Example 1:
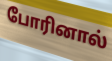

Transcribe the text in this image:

போரினால்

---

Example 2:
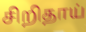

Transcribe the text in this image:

சிறிதாய்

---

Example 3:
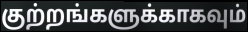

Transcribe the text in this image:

குற்றங்களுக்காகவும்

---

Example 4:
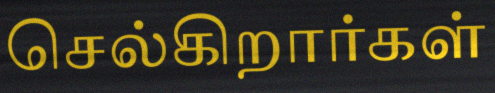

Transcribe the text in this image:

செல்கிறார்கள்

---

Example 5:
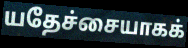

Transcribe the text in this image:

யதேச்சையாகக்